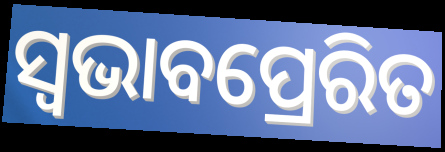
ସ୍ୱଭାବପ୍ରେରିତ